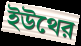
ইউথের